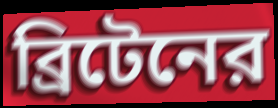
ব্রিটেনের